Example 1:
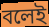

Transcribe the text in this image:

বলেই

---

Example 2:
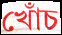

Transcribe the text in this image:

খোঁচ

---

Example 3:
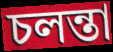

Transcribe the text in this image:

চলন্তা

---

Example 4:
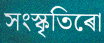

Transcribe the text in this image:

সংস্কৃতিৰো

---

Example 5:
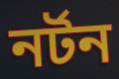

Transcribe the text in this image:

নৰ্টন